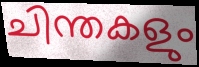
ചിന്തകളും